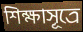
শিক্ষাসূত্রে